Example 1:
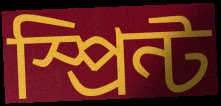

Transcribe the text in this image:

স্প্রিন্ট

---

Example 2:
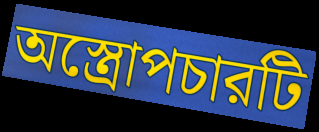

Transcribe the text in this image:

অস্ত্রোপচারটি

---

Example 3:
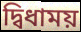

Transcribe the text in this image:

দ্বিধাময়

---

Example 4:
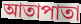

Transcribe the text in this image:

আতাপাতা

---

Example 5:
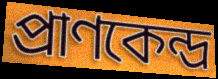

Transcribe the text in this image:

প্রাণকেন্দ্র